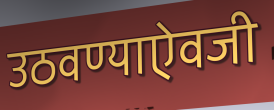
उठवण्याऐवजी